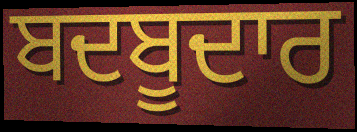
ਬਦਬੂਦਾਰ